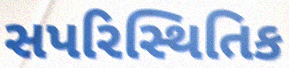
સપરિસ્થિતિક